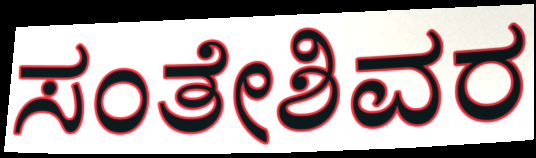
ಸಂತೇಶಿವರ